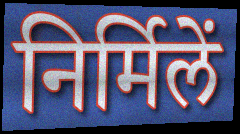
निर्मिलें